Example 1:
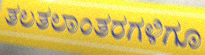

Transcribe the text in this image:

ತಲತಲಾಂತರಗಳಿಗೂ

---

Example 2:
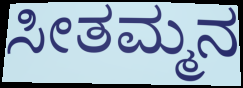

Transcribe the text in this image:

ಸೀತಮ್ಮನ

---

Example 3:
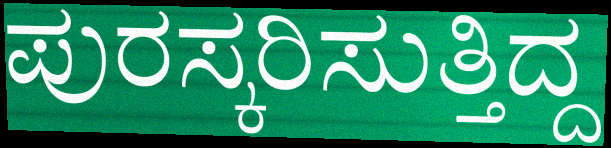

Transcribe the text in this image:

ಪುರಸ್ಕರಿಸುತ್ತಿದ್ದ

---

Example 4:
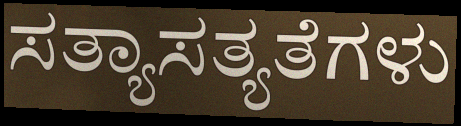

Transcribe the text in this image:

ಸತ್ಯಾಸತ್ಯತೆಗಳು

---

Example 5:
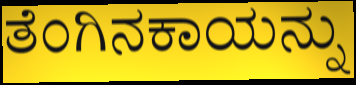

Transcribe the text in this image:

ತೆಂಗಿನಕಾಯನ್ನು